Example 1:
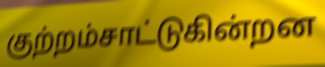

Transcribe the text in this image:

குற்றம்சாட்டுகின்றன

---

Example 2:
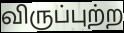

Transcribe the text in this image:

விருப்புற்ற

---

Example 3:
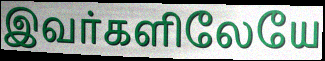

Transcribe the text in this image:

இவர்களிலேயே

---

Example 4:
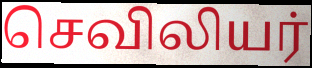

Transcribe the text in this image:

செவிலியர்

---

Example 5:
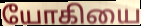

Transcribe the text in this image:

யோகியை